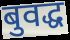
बुवद्ध